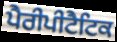
ਪੈਰੀਪੀਟੈਟਿਕ